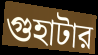
গুহাটার